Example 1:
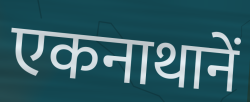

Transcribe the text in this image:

एकनाथानें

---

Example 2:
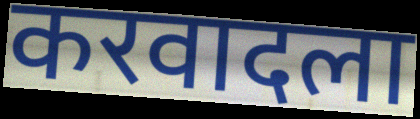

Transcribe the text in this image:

करवादला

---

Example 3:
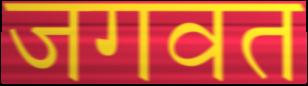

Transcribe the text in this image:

जगवत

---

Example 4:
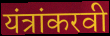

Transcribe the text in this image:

यंत्रांकरवी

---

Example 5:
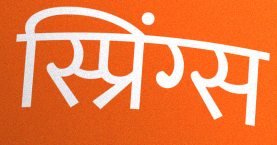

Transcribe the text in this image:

स्प्रिंग्स